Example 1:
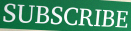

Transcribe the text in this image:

SUBSCRIBE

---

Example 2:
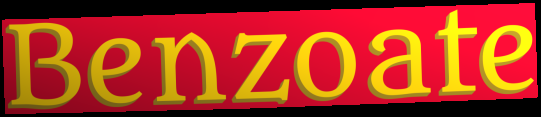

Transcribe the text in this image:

Benzoate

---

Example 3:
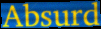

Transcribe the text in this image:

Absurd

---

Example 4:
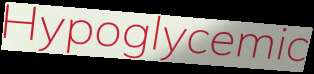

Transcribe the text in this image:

Hypoglycemic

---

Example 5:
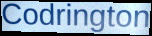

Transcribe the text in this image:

Codrington